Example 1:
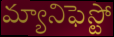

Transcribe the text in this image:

మ్యానిఫెస్టో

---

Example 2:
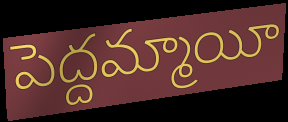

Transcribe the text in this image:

పెద్దమ్మాయీ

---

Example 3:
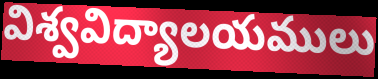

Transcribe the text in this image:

విశ్వవిద్యాలయములు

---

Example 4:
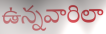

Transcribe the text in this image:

ఉన్నవారిలా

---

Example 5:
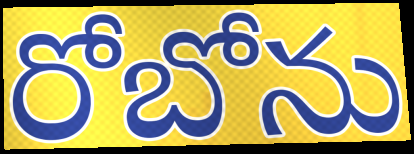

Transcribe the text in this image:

రోబోను